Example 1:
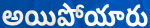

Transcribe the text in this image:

అయిపోయారు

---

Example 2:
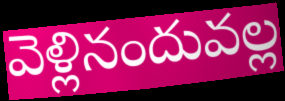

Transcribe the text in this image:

వెళ్లినందువల్ల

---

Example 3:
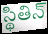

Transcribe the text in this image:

స్థితిన్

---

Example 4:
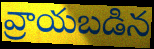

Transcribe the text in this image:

వ్రాయబడిన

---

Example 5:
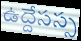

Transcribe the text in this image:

ఉద్దేసస్స